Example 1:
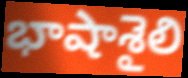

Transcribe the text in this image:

భాషాశైలి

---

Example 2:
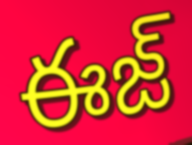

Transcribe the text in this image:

ఈజ్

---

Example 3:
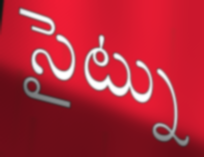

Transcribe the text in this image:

సైట్ను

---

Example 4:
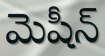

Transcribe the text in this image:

మెషీన్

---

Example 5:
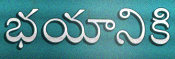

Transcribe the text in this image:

భయానికి